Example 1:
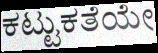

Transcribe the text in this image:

ಕಟ್ಟುಕತೆಯೇ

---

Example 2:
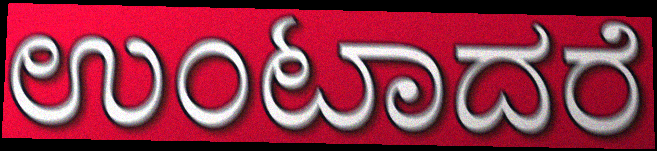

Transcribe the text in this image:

ಉಂಟಾದರೆ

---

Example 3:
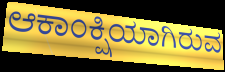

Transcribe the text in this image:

ಆಕಾಂಕ್ಷಿಯಾಗಿರುವ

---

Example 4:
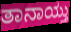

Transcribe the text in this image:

ತಾನಾಯ್ತು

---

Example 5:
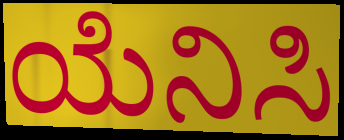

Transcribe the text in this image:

ಯೆನಿಸಿ